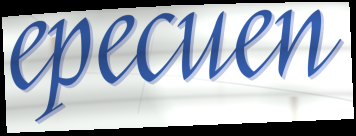
epecuen